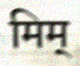
मिम्